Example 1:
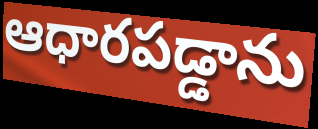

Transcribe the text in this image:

ఆధారపడ్డాను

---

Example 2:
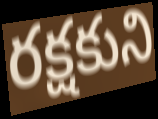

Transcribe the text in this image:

రక్షకుని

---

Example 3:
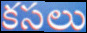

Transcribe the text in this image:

కసలు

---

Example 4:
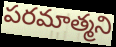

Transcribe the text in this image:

పరమాత్మని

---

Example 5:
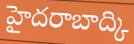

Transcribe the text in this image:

హైదరాబాద్కి